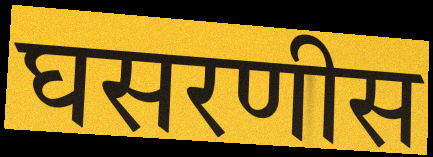
घसरणीस